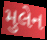
મુલેન